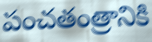
పంచతంత్రానికి